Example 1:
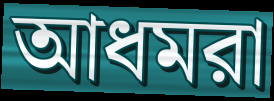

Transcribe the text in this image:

আধমরা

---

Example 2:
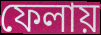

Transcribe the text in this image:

ফেলায়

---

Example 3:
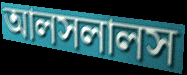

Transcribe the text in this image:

আলসলালস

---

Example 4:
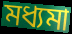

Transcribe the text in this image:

মধ্যমা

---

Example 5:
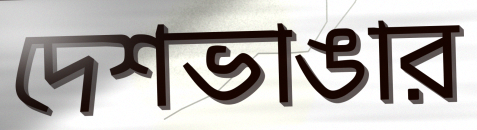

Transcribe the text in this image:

দেশভাঙার